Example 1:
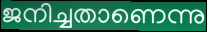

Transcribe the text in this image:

ജനിച്ചതാണെന്നു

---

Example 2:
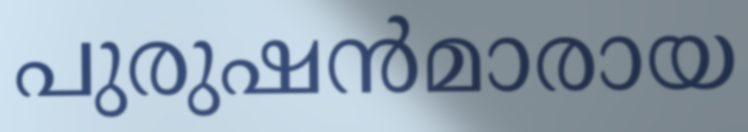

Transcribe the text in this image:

പുരുഷൻമാരായ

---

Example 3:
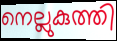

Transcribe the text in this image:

നെല്ലുകുത്തി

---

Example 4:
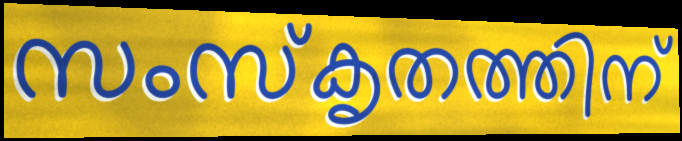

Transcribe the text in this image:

സംസ്കൃതത്തിന്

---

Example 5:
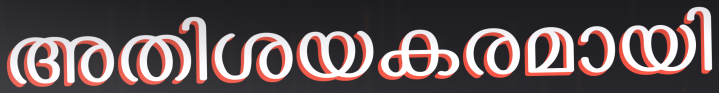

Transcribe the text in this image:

അതിശയകരമായി